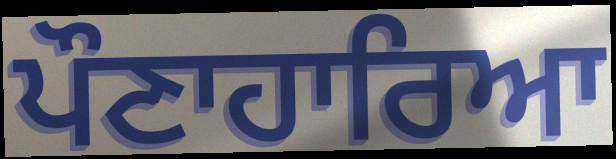
ਪੌਣਾਹਾਰਿਆ